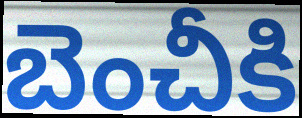
బెంచీకి